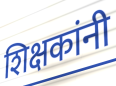
शिक्षकांनी